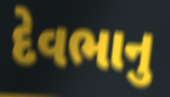
દેવભાનુ